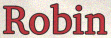
Robin